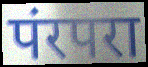
पंरपरा